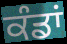
ਕੰਡਾਂ